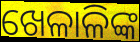
ଖେଳାଳିଙ୍କ